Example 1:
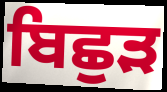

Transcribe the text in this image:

ਬਿਛੁੜ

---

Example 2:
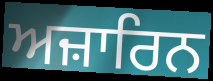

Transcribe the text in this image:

ਅਜ਼ਾਰਿਨ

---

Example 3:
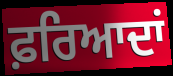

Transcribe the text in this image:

ਫ਼ਰਿਆਦਾਂ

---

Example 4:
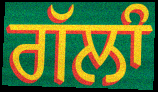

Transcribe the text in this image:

ਗੱਲਾੰ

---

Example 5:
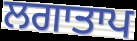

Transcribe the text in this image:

ਲਗਾਤਾਪ